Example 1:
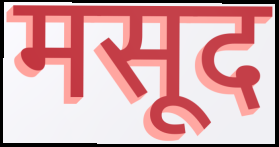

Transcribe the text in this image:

मसूद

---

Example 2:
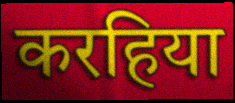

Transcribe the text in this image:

करहिया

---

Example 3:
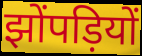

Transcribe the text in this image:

झोंपड़ियों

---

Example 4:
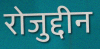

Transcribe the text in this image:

रोजुद्दीन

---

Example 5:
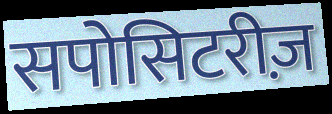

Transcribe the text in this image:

सपोसिटरीज़